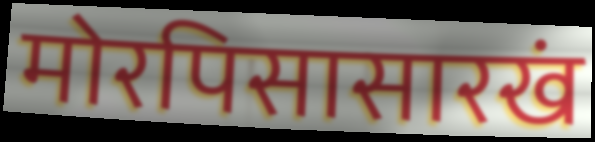
मोरपिसासारखं